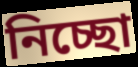
নিচ্ছো